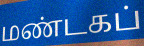
மண்டகப்